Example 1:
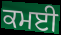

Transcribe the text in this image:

ਕਮਈ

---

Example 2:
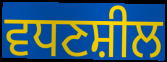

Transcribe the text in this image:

ਵਧਣਸ਼ੀਲ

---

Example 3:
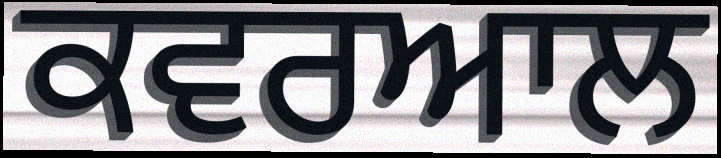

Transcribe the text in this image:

ਕਵਰਆਲ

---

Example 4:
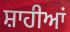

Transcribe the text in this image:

ਸ਼ਾਹੀਆਂ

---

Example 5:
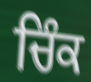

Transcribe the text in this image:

ਚਿੰਕ